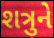
શત્રુને